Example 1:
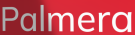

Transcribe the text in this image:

Palmera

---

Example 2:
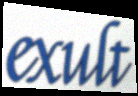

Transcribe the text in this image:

exult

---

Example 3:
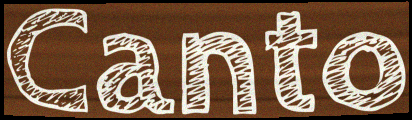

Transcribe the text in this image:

Canto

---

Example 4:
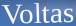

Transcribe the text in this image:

Voltas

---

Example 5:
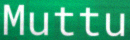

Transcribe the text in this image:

Muttu